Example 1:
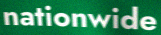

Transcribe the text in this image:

nationwide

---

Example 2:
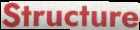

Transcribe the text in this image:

Structure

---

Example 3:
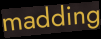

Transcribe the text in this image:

madding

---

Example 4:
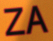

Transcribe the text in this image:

ZA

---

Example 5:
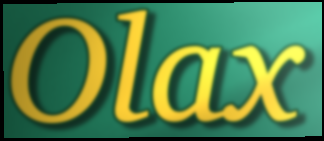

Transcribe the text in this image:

Olax